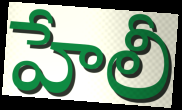
హేలీ